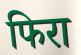
फिरा